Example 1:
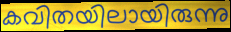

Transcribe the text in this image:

കവിതയിലായിരുന്നു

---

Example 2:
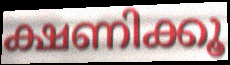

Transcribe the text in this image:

ക്ഷണിക്കൂ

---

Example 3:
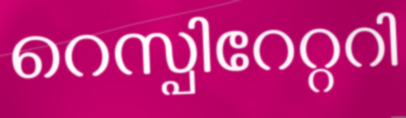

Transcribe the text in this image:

റെസ്പിറേറ്ററി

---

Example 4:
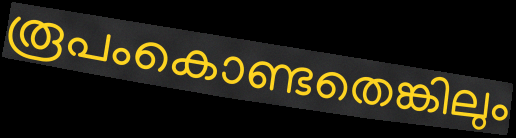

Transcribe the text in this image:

രൂപംകൊണ്ടതെങ്കിലും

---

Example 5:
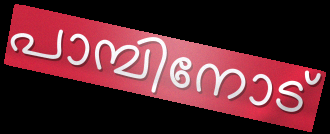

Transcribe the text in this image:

പാമ്പിനോട്